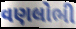
વણલોભી